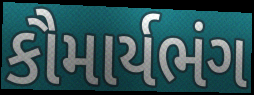
કૌમાર્યભંગ